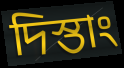
দিস্তাং